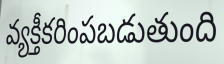
వ్యక్తీకరింపబడుతుంది